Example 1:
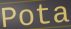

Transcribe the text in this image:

Pota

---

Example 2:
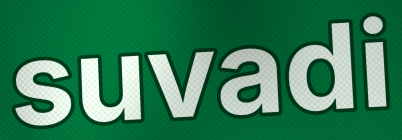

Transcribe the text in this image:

suvadi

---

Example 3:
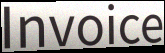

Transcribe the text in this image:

Invoice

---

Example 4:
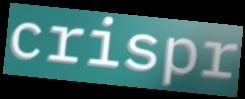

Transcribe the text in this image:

crispr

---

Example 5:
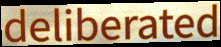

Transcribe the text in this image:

deliberated